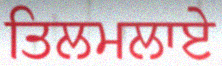
ਤਿਲਮਲਾਏ